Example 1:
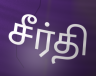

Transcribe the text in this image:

சீர்தி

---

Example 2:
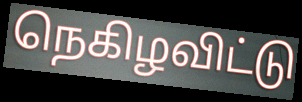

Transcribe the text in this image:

நெகிழவிட்டு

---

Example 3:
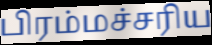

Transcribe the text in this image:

பிரம்மச்சரிய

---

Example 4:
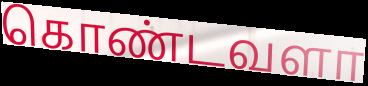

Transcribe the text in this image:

கொண்டவளா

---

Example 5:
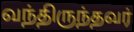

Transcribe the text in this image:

வந்திருந்தவர்